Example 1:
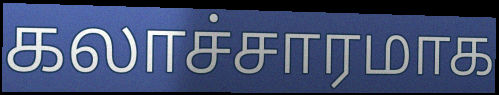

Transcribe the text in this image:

கலாச்சாரமாக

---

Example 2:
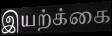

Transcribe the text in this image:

இயற்க்கை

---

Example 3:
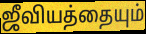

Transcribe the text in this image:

ஜீவியத்தையும்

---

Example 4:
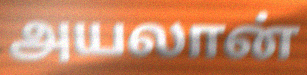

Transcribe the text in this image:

அயலான்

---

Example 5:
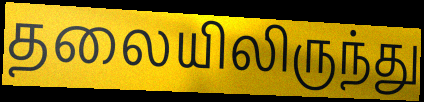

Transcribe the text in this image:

தலையிலிருந்து